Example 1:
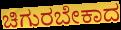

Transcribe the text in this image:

ಚಿಗುರಬೇಕಾದ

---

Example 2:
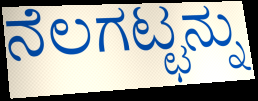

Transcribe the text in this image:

ನೆಲಗಟ್ಟನ್ನು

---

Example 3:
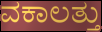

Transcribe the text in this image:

ವಕಾಲತ್ತು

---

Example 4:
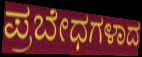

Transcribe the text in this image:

ಪ್ರಬೇಧಗಳಾದ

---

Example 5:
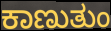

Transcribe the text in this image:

ಕಾಣುತುಂ